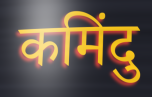
कमिंदु